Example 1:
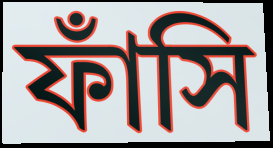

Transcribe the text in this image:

ফাঁসি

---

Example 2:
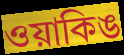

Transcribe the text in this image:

ওয়াকিঙ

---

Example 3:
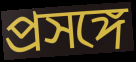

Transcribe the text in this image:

প্রসঙ্গে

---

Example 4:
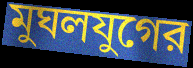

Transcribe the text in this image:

মুঘলযুগের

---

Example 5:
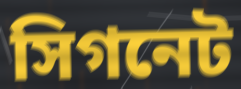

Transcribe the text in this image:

সিগনেট